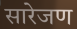
सारेजण